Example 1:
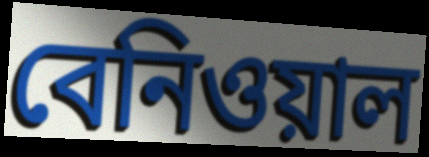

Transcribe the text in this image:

বেনিওয়াল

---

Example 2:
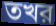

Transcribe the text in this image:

তখর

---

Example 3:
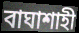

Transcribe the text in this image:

বাঘাশাহী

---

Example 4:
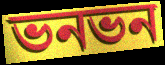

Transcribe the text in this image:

ভনভন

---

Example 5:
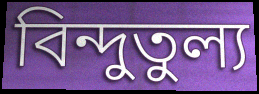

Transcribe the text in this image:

বিন্দুতুল্য